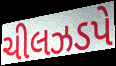
ચીલઝડપે